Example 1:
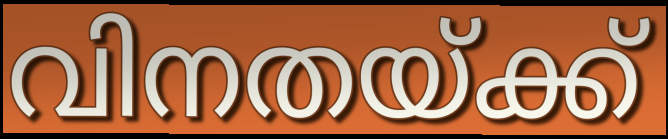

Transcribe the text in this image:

വിനതയ്ക്ക്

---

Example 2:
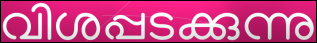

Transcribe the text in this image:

വിശപ്പടക്കുന്നു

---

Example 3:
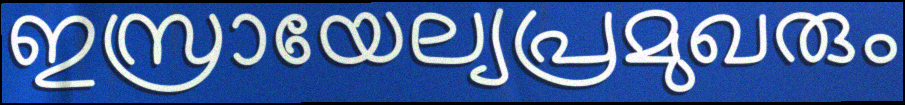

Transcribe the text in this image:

ഇസ്രായേല്യപ്രമുഖരും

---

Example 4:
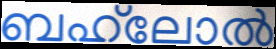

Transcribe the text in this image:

ബഹ്‌ലോൽ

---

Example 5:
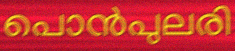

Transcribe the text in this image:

പൊൻപുലരി